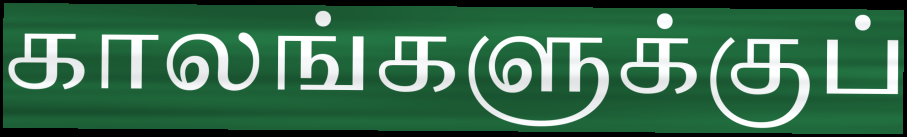
காலங்களுக்குப்